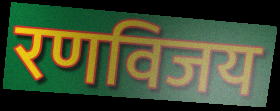
रणविजय